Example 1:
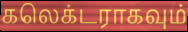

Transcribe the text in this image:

கலெக்டராகவும்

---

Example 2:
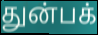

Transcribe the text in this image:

துன்பக்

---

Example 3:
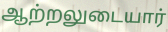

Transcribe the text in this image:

ஆற்றலுடையார்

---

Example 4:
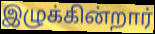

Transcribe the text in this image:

இழுக்கின்றார்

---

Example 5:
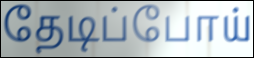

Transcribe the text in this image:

தேடிப்போய்